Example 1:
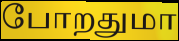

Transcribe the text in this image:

போறதுமா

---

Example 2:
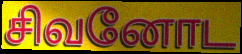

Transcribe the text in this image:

சிவனோட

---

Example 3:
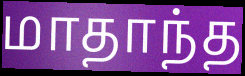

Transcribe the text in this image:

மாதாந்த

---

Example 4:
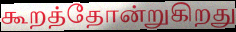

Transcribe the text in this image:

கூறத்தோன்றுகிறது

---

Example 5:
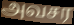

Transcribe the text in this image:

அவசர